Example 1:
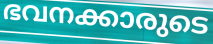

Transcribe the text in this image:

ഭവനക്കാരുടെ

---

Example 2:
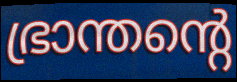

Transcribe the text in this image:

ഭ്രാന്തന്റെ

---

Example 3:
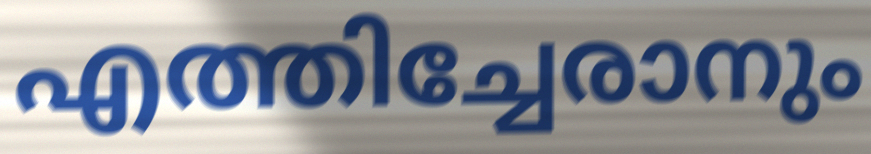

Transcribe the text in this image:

എത്തിച്ചേരാനും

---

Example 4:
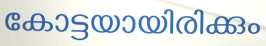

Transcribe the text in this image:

കോട്ടയായിരിക്കും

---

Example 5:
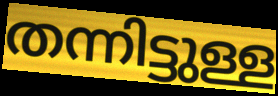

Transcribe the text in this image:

തന്നിട്ടുള്ള